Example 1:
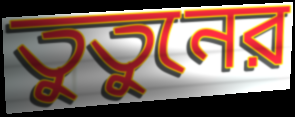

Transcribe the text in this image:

তুতুনের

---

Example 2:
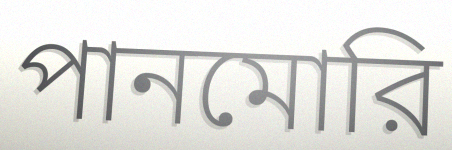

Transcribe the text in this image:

পানমোরি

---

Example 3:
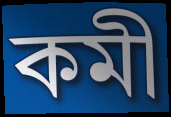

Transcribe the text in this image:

কমী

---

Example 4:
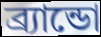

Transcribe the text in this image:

ব্র্যান্ডো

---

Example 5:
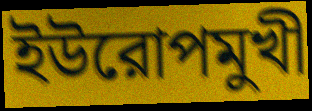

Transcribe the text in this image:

ইউরোপমুখী